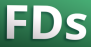
FDs